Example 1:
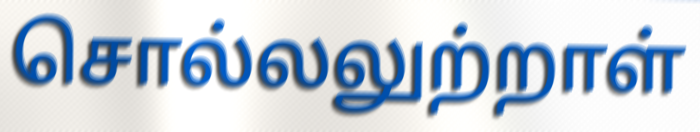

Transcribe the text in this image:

சொல்லலுற்றாள்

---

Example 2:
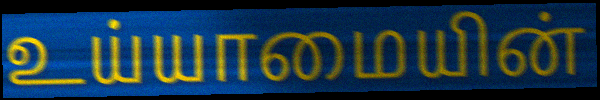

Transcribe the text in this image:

உய்யாமையின்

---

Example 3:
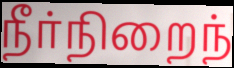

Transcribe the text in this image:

நீர்நிறைந்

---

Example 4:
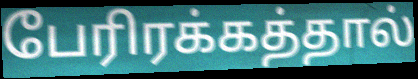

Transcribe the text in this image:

பேரிரக்கத்தால்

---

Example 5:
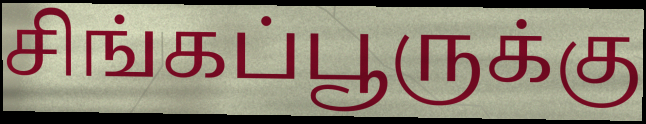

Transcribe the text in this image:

சிங்கப்பூருக்கு